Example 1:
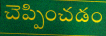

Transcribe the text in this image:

చెప్పించడం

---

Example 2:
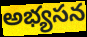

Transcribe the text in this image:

అభ్యసన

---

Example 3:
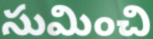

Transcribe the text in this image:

సుమించి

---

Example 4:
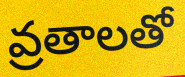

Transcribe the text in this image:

వ్రతాలతో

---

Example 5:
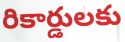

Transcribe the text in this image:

రికార్డులకు